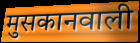
मुसकानवाली